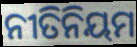
ନୀତିନିୟମ